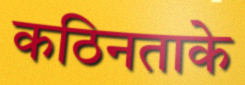
कठिनताके